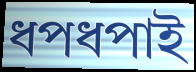
ধপধপাই